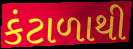
કંટાળાથી